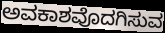
ಅವಕಾಶವೊದಗಿಸುವ